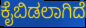
ಕೈಬಿಡಲಾಗಿದೆ